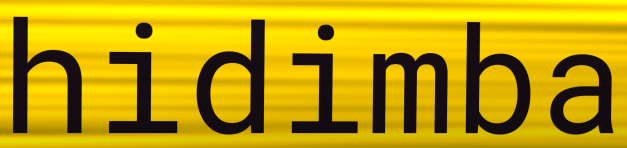
hidimba